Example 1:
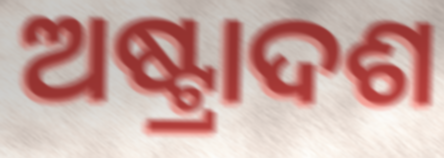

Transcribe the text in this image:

ଅଷ୍ଟ୍ରାଦଶ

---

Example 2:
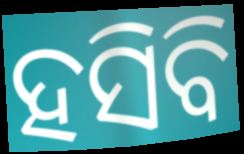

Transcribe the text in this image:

ହସିବି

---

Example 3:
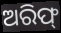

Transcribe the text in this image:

ଅରିଫ୍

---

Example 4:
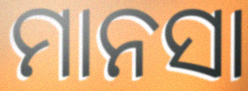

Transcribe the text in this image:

ମାନସା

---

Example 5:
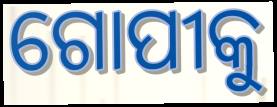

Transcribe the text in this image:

ଗୋପୀକୁ